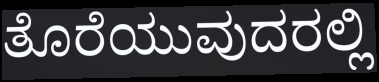
ತೊರೆಯುವುದರಲ್ಲಿ